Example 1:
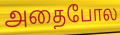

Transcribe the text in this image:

அதைபோல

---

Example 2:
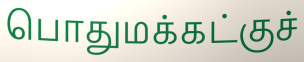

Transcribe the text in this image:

பொதுமக்கட்குச்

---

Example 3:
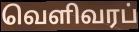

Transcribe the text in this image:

வெளிவரப்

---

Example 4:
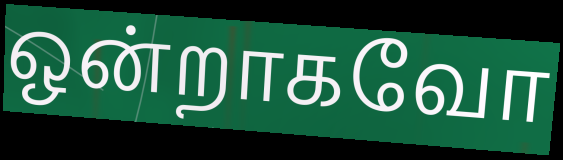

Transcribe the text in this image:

ஒன்றாகவோ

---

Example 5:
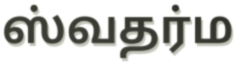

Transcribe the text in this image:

ஸ்வதர்ம